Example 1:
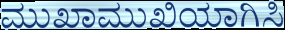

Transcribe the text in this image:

ಮುಖಾಮುಖಿಯಾಗಿಸಿ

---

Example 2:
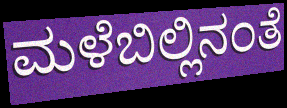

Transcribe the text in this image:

ಮಳೆಬಿಲ್ಲಿನಂತೆ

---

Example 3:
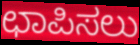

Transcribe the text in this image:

ಛಾಪಿಸಲು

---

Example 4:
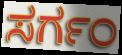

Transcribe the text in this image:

ಸರ್ಗಂ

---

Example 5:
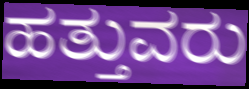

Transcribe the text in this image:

ಹತ್ತುವರು